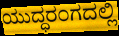
ಯುದ್ಧರಂಗದಲ್ಲಿ